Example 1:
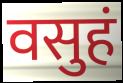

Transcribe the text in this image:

वसुहं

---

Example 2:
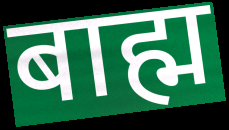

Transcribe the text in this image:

बाह्म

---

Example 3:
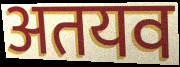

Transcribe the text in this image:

अतयव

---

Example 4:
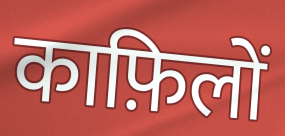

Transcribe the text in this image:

काफ़िलों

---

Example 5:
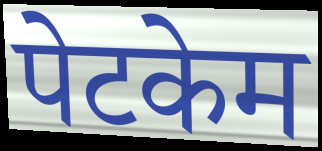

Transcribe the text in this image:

पेटकेम